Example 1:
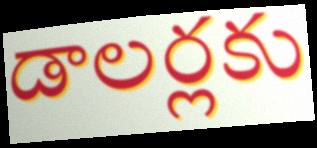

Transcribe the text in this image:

డాలర్లకు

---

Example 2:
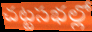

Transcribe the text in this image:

చట్టసభల్లో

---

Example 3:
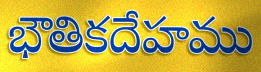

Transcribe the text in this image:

భౌతికదేహము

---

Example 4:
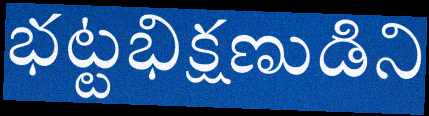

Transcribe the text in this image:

భట్టభిక్షణుడిని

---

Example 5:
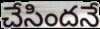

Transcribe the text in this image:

చేసిందనే